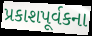
પ્રકાશપૂર્વકના